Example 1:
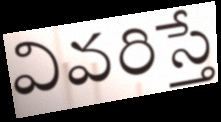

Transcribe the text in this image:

వివరిస్తే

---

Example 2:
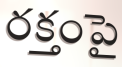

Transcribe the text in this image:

రక్తంపై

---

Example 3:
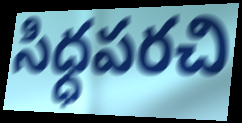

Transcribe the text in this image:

సిధ్ధపరచి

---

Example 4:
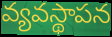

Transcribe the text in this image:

వ్యవస్థాపన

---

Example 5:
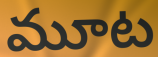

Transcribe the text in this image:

మూట